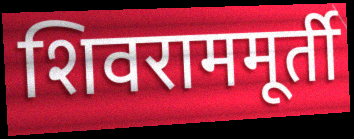
शिवराममूर्ती